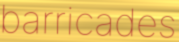
barricades